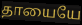
தாயையே